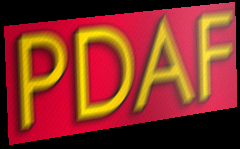
PDAF